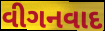
વીગનવાદ